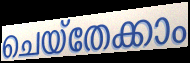
ചെയ്‌തേക്കാം